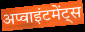
अप्वाइंटमेंट्स